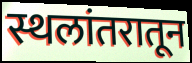
स्थलांतरातून